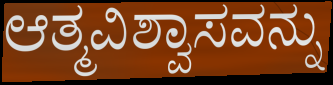
ಆತ್ಮವಿಶ್ವಾಸವನ್ನು